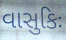
વાસુકિઃ